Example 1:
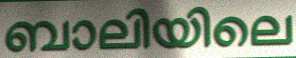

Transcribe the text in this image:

ബാലിയിലെ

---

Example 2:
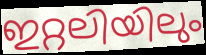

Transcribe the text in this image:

ഇറ്റലിയിലും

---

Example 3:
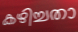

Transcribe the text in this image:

കഴിച്ചതാ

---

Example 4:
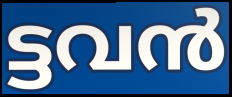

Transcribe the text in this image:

ട്ടവൻ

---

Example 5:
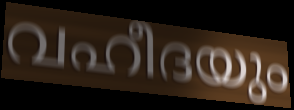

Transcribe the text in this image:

വഹീദയും